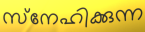
സ്‌നേഹിക്കുന്ന